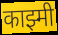
काझ्मी